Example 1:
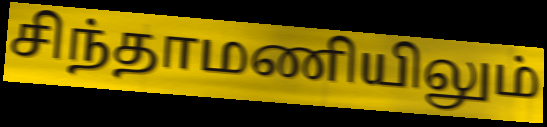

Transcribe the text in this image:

சிந்தாமணியிலும்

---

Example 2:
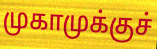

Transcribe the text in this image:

முகாமுக்குச்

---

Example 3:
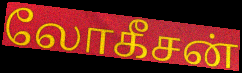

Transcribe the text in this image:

லோகீசன்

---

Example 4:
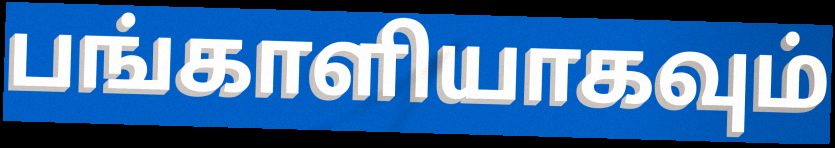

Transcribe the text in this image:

பங்காளியாகவும்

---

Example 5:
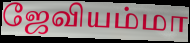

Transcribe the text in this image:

ஜேவியம்மா